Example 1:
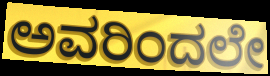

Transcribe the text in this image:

ಅವರಿಂದಲೇ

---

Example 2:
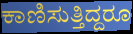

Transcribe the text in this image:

ಕಾಣಿಸುತ್ತಿದ್ದರೂ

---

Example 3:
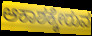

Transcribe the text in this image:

ಆಕಾಶಕ್ಕೇರುವ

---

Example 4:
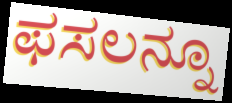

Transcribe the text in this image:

ಫಸಲನ್ನೂ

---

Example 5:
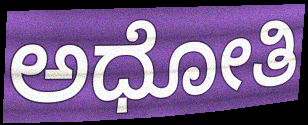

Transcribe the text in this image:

ಅಧೋತಿ